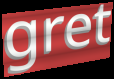
gret